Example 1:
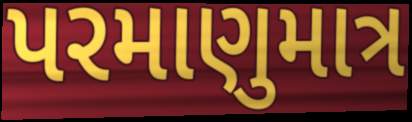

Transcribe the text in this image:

પરમાણુમાત્ર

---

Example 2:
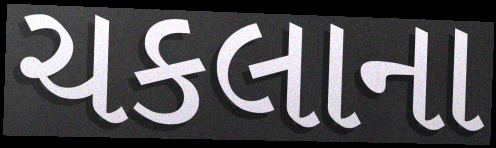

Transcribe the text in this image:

ચકલાના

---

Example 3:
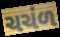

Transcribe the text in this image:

ચચંળ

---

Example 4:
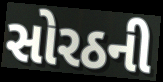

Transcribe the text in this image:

સોરઠની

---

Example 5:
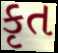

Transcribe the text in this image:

કૃત